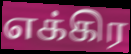
எக்கிர